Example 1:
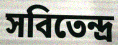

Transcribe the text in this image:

সবিতেন্দ্র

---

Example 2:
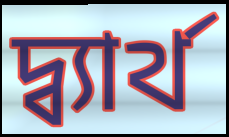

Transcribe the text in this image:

দ্ব্যার্থ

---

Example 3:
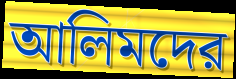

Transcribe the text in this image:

আলিমদের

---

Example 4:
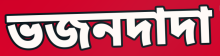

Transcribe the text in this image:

ভজনদাদা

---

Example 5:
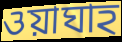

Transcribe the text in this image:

ওয়াঘাহ